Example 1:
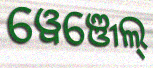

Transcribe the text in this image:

ୱେଞ୍ଜେଲ୍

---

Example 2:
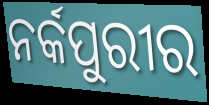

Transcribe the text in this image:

ନର୍କପୁରୀର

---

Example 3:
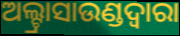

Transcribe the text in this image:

ଅଲ୍ଟ୍ରାସାଉଣ୍ଡଦ୍ୱାରା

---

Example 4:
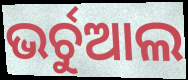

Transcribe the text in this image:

ଭର୍ଚୁଆଲ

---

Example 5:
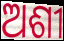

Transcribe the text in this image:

ଅଶୀ